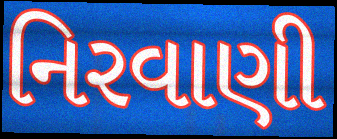
નિરવાણી